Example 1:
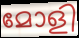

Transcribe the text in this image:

മോളി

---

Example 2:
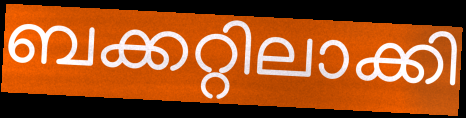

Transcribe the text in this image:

ബക്കറ്റിലാക്കി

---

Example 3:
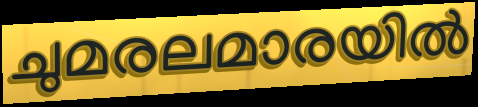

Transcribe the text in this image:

ചുമരലമാരയിൽ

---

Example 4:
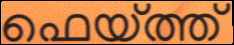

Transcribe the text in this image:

ഫെയ്ത്ത്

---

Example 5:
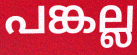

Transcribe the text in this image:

പങ്കല്ല